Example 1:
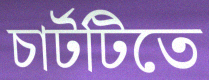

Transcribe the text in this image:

চার্টটিতে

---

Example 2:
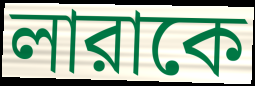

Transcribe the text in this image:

লারাকে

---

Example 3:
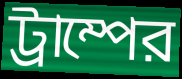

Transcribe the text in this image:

ট্রাম্পের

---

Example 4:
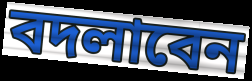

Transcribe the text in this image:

বদলাবেন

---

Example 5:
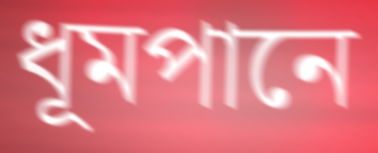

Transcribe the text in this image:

ধূমপানে